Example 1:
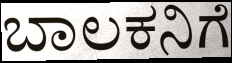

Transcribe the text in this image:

ಬಾಲಕನಿಗೆ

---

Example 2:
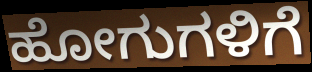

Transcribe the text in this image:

ಹೋಗುಗಳಿಗೆ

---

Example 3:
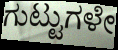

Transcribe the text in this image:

ಗುಟ್ಟುಗಳೇ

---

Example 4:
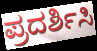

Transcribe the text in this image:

ಪ್ರದರ್ಶಿಸಿ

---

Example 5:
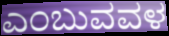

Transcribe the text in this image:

ಎಂಬುವವಳ